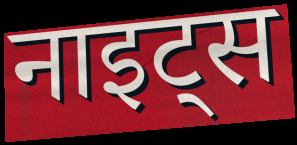
नाइट्स